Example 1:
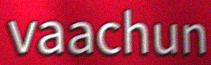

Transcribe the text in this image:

vaachun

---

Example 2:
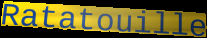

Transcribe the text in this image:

Ratatouille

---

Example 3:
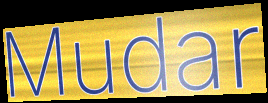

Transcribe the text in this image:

Mudar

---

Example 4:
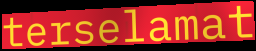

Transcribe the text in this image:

terselamat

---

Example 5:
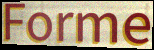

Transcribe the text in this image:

Forme